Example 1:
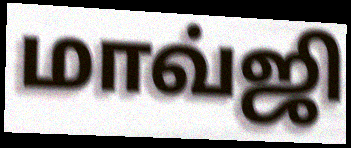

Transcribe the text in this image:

மாவ்ஜி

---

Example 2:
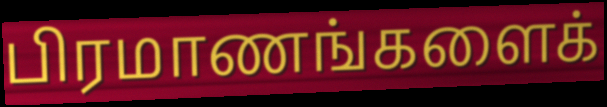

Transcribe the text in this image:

பிரமாணங்களைக்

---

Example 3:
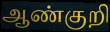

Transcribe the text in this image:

ஆண்குறி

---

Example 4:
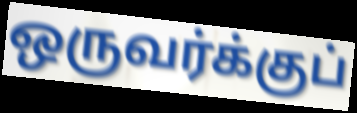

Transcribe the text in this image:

ஒருவர்க்குப்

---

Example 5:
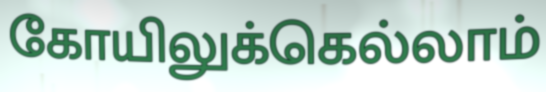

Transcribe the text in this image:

கோயிலுக்கெல்லாம்